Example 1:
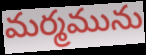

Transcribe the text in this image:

మర్మమును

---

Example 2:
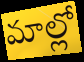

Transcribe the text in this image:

మాల్లో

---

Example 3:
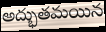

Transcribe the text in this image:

అద్భుతమయిన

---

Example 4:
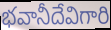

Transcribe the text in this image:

భవానీదేవిగారి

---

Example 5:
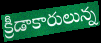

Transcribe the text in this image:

క్రీడాకారులున్న